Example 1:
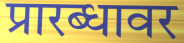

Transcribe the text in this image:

प्रारब्धावर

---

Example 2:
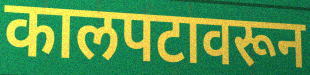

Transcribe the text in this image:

कालपटावरून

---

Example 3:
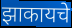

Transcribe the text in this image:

झाकायचे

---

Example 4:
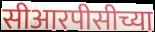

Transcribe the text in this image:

सीआरपीसीच्या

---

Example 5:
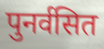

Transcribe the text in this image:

पुनर्वसित